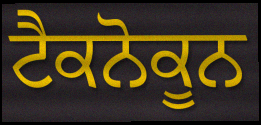
ਟੈਕਨੋਕੂਨ